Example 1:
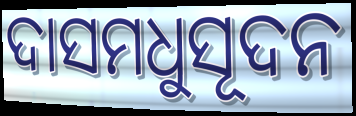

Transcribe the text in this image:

ଦାସମଧୁସୂଦନ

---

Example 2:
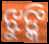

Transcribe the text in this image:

ଝୁଙ୍କି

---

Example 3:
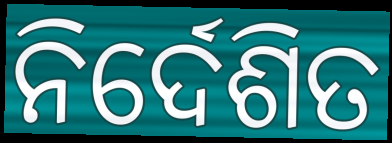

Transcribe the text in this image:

ନିର୍ଦେଶିତ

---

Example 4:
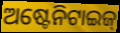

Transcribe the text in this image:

ଅଷ୍ଟେନିଟାଇଜ୍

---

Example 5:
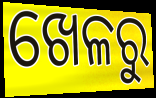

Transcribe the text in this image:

ଖେଳରୁ